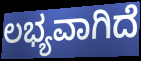
ಲಭ್ಯವಾಗಿದೆ